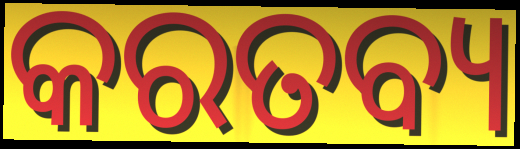
କରତବ୍ୟ